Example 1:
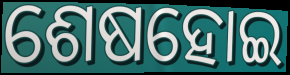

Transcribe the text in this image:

ଶେଷହୋଇ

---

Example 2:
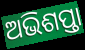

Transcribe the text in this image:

ଅଭିଶପ୍ତା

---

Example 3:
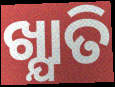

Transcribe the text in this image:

ଖ୍ଯାତି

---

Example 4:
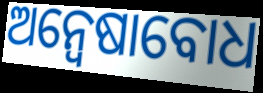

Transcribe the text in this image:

ଅନ୍ୱେଷାବୋଧ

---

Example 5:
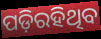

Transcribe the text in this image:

ପଡ଼ିରହିଥିବ